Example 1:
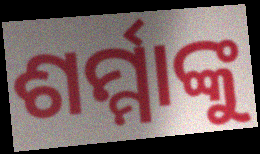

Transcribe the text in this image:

ଶର୍ମ୍ମାଙ୍କୁ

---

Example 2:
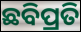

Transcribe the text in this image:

ଛବିପ୍ରତି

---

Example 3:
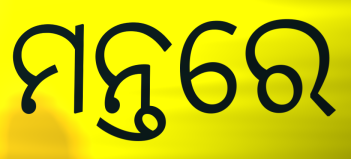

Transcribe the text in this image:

ମନ୍ତରେ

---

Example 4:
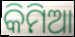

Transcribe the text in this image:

କିମିଆ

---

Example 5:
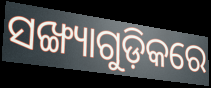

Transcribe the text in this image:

ସଙ୍ଖ୍ୟାଗୁଡ଼ିକରେ